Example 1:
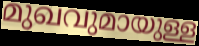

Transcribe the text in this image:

മുഖവുമായുള്ള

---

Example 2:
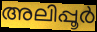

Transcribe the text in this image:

അലിപ്പൂർ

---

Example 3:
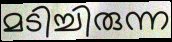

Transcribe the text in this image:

മടിച്ചിരുന്ന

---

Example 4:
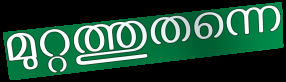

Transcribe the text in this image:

മുറ്റത്തുതന്നെ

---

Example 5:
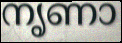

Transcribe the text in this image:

നൃണാ